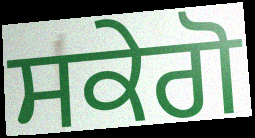
ਸਕੇਗੋ